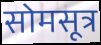
सोमसूत्र